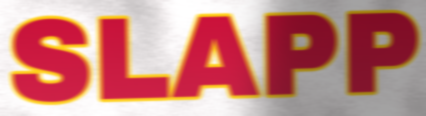
SLAPP